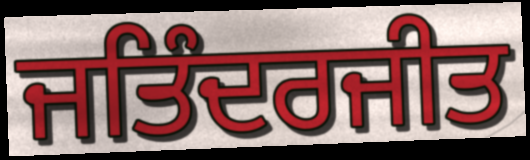
ਜਤਿੰਦਰਜੀਤ